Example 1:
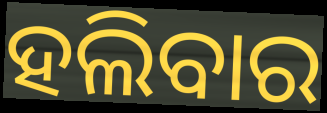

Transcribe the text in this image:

ହଲିବାର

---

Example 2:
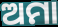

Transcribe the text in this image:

ଅମା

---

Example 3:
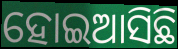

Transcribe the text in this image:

ହୋଇଆସିଛି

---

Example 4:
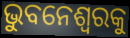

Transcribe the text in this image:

ଭୁବନେଶ୍ୱରକୁ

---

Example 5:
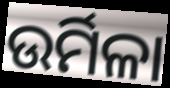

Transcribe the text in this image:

ଉର୍ମିଳା